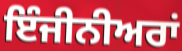
ਇੰਜੀਨੀਅਰਾਂ